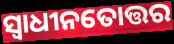
ସ୍ୱାଧୀନତୋତ୍ତର